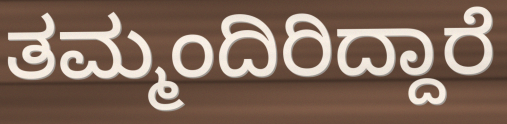
ತಮ್ಮಂದಿರಿದ್ದಾರೆ